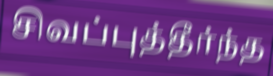
சிவப்புத்தீர்ந்த